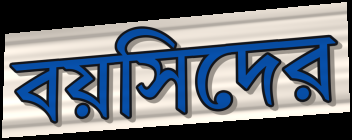
বয়সিদের